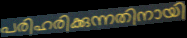
പരിഹരിക്കുന്നതിനായി